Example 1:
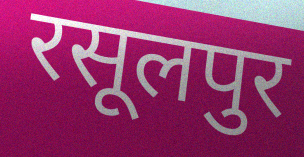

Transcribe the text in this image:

रसूलपुर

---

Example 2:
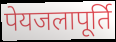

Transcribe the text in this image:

पेयजलापूर्ति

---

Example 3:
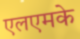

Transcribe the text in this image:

एलएमके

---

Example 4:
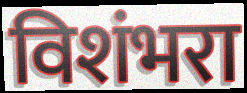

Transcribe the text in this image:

विशंभरा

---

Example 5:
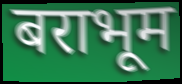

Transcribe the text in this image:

बराभूम